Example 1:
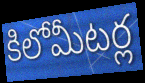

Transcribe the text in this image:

కిలోమీటర్ల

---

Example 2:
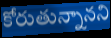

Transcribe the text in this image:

కోరుతున్నానని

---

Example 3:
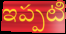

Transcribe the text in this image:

ఇప్పటి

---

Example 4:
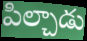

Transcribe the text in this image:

పిల్చాడు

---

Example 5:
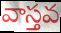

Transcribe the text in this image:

వాస్తవ